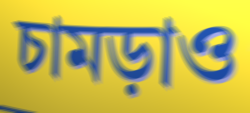
চামড়াও